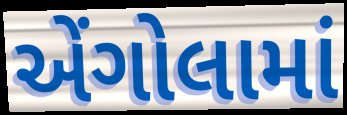
એંગોલામાં